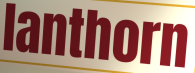
lanthorn